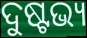
ଦୁଷ୍ଟଭ୍ୟ